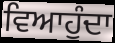
ਵਿਆਹੁੰਦਾ